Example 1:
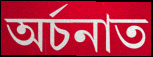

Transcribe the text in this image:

অৰ্চনাত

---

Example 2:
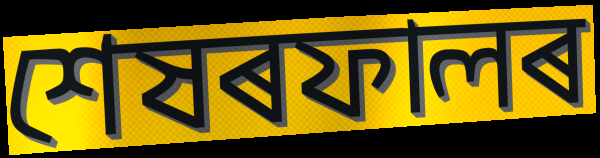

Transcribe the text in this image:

শেষৰফালৰ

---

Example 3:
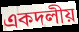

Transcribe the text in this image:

একদলীয়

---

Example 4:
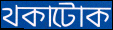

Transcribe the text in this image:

থকাটোক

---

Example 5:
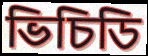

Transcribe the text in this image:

ভিচিডি